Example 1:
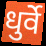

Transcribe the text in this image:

धुर्वे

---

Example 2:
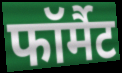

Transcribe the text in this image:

फॉर्मैट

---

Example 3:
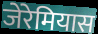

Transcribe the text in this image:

जेरेमियास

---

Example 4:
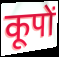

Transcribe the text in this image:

कूपों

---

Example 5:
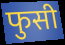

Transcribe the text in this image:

फुसी